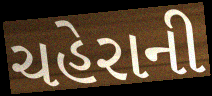
ચહેરાની